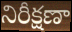
నిరీక్షణా